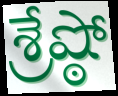
శ్రేష్ఠో